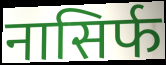
नासिर्फ